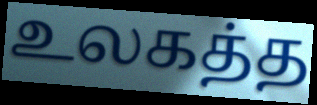
உலகத்த